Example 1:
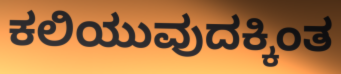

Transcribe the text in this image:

ಕಲಿಯುವುದಕ್ಕಿಂತ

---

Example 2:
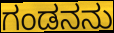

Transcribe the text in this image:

ಗಂಡನನು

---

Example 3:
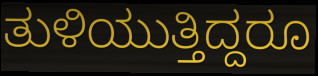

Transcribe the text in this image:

ತುಳಿಯುತ್ತಿದ್ದರೂ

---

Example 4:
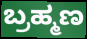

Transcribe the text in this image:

ಬ್ರಹ್ಮಣ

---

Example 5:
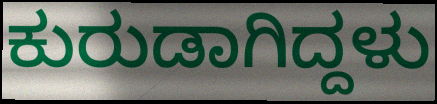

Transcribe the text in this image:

ಕುರುಡಾಗಿದ್ದಳು